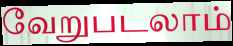
வேறுபடலாம்